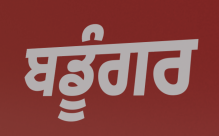
ਬਡੂੰਗਰ